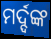
ମର୍ଦ୍ଦଙ୍କ